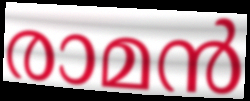
രാമൻ